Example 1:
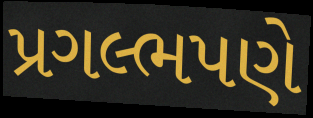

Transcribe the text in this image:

પ્રગલ્ભપણે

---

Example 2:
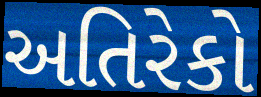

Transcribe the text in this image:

અતિરેકો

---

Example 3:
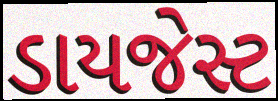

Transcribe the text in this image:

ડાયજેસ્ટ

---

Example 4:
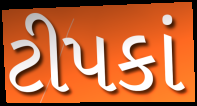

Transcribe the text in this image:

ટીપકાં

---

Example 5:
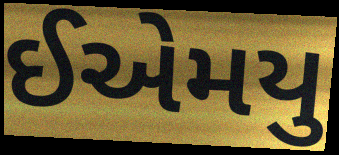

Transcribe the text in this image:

ઈએમયુ